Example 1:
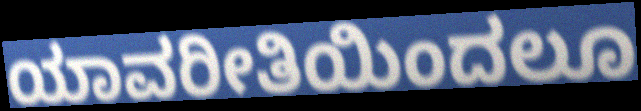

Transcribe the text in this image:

ಯಾವರೀತಿಯಿಂದಲೂ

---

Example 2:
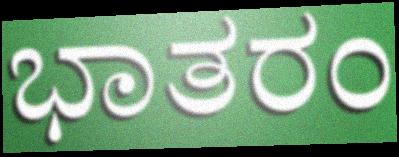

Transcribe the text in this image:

ಭಾತರಂ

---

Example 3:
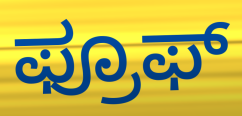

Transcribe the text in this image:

ಫ್ರೂಫ್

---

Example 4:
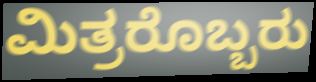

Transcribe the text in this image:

ಮಿತ್ರರೊಬ್ಬರು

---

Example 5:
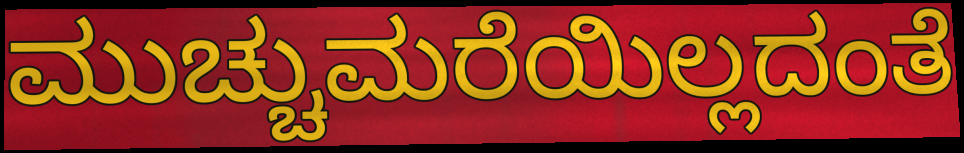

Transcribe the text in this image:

ಮುಚ್ಚುಮರೆಯಿಲ್ಲದಂತೆ